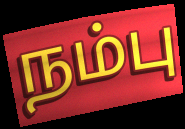
நம்பு